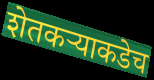
शेतकऱ्याकडेच